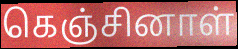
கெஞ்சினாள்